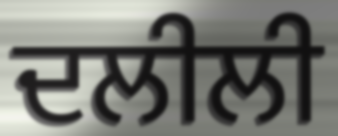
ਦਲੀਲੀ